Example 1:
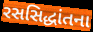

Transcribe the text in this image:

રસસિદ્ધાંતના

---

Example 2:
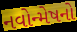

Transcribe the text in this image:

નવોન્મેષનો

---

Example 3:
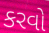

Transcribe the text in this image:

કરવો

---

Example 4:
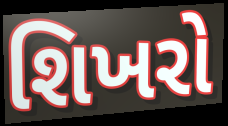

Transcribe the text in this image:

શિખરો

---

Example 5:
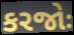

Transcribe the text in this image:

કરજોઃ